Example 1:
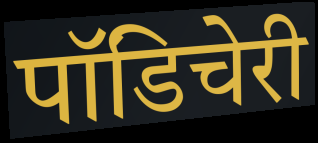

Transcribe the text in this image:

पॉंडिचेरी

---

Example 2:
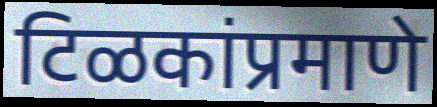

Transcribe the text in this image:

टिळकांप्रमाणे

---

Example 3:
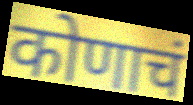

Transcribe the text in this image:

कोणाचं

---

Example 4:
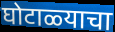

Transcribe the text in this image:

घोटाळ्याचा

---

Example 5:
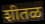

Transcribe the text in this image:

शीतळ